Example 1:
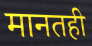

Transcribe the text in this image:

मानतही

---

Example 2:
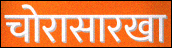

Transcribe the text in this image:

चोरासारखा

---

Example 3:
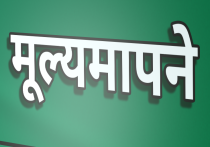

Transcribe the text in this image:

मूल्यमापने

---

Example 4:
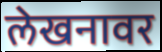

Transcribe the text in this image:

लेखनावर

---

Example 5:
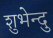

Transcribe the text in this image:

शुभेन्दु